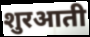
शुरआती